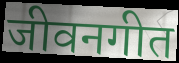
जीवनगीत